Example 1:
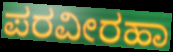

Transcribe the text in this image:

ಪರವೀರಹಾ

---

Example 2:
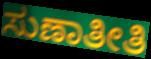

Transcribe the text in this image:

ಸುಣಾತೀತಿ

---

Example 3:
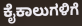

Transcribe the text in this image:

ಕೈಕಾಲುಗಳಿಗೆ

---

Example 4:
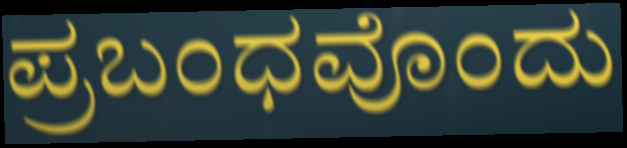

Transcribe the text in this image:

ಪ್ರಬಂಧವೊಂದು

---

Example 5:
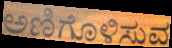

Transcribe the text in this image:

ಅಣಿಗೊಳಿಸುವ